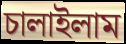
চালাইলাম